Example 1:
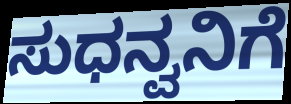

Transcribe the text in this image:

ಸುಧನ್ವನಿಗೆ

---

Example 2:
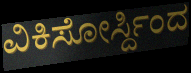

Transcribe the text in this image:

ವಿಕಿಸೋರ್ಸ್ದಿಂದ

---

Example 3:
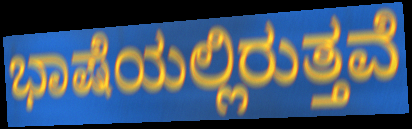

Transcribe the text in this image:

ಭಾಷೆಯಲ್ಲಿರುತ್ತವೆ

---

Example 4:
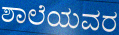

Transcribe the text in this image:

ಶಾಲೆಯವರ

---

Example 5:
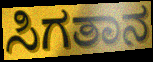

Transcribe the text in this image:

ಸಿಗತಾನ